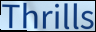
Thrills